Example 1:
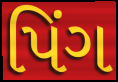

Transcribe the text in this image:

પિંગ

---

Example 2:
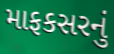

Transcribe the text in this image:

માફકસરનું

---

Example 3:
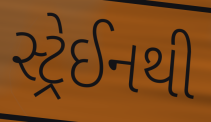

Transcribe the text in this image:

સ્ટ્રેઈનથી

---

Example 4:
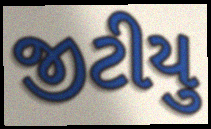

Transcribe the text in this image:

જીટીયુ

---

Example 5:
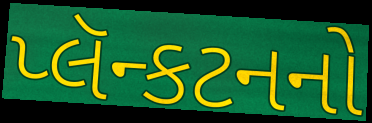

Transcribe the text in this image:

પ્લૅન્કટનનો